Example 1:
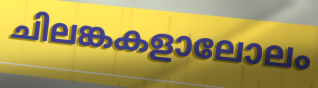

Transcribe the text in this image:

ചിലങ്കകളാലോലം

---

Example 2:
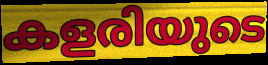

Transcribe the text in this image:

കളരിയുടെ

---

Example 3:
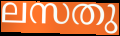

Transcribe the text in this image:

ലസതു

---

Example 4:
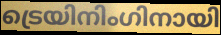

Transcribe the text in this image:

ട്രെയിനിംഗിനായി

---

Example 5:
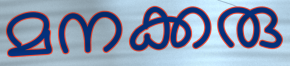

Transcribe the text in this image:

മനക്കരു